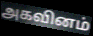
அகவினம்